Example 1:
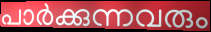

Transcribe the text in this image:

പാർക്കുന്നവരും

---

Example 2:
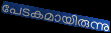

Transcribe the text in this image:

പേടകമായിരുന്നു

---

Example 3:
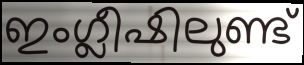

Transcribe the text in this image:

ഇംഗ്ലീഷിലുണ്ട്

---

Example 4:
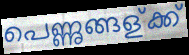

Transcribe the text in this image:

പെണ്ണുങ്ങള്ക്ക്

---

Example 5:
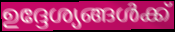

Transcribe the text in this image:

ഉദ്ദേശ്യങ്ങൾക്ക്